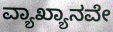
ವ್ಯಾಖ್ಯಾನವೇ